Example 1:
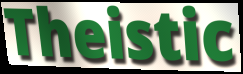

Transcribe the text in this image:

Theistic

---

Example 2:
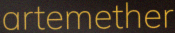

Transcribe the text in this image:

artemether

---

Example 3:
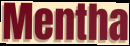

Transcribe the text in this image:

Mentha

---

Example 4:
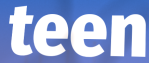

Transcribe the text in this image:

teen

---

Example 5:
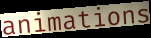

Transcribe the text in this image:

animations